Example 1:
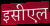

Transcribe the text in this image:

इसीएल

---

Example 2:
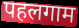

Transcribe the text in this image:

पहलगाम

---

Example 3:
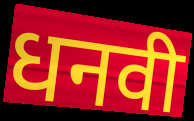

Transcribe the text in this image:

धनवी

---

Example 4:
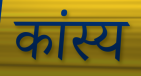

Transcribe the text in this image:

कांस्य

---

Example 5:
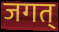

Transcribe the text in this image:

जगत्